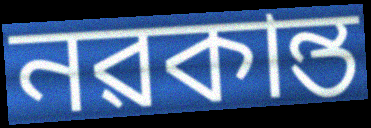
নৱকান্ত